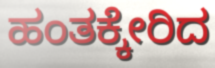
ಹಂತಕ್ಕೇರಿದ